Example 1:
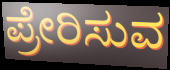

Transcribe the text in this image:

ಪ್ರೇರಿಸುವ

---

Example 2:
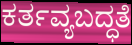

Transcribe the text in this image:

ಕರ್ತವ್ಯಬದ್ಧತೆ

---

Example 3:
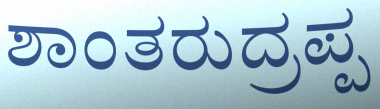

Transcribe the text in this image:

ಶಾಂತರುದ್ರಪ್ಪ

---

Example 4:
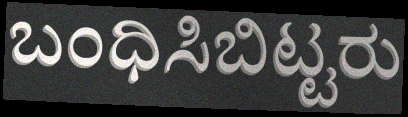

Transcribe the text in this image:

ಬಂಧಿಸಿಬಿಟ್ಟರು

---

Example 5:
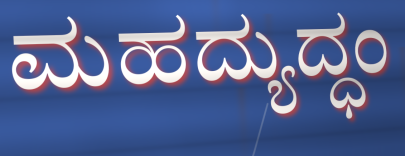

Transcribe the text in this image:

ಮಹದ್ಯುದ್ಧಂ